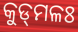
କୁଡ୍‌ମଳଃ